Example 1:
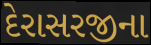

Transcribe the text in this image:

દેરાસરજીના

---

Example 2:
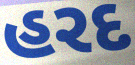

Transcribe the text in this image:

હરદ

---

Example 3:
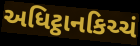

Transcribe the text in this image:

અધિટ્ઠાનકિચ્ચં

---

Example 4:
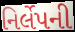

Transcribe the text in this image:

નિર્લેપની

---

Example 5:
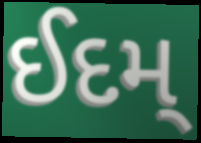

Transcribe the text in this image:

ઈદમ્